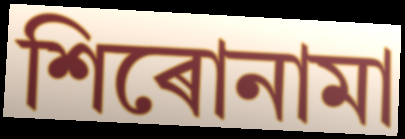
শিৰোনামা